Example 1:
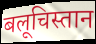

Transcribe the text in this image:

बलूचिस्तान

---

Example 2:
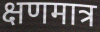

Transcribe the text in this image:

क्षणमात्र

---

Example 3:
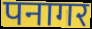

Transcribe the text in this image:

पनागर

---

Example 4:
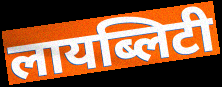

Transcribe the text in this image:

लायब्लिटी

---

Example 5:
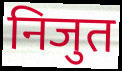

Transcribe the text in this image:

निजुत